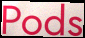
Pods